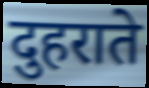
दुहराते